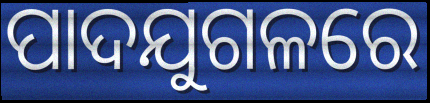
ପାଦଯୁଗଳରେ